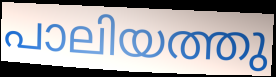
പാലിയത്തു